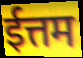
ईत्तम